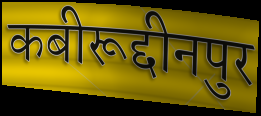
कबीरूद्दीनपुर